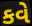
કવે